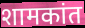
शामकांत